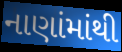
નાણાંમાંથી